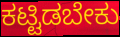
ಕಟ್ಟಿಡಬೇಕು